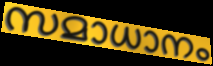
സമാധാനം